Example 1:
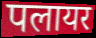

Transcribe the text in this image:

पलायर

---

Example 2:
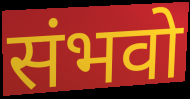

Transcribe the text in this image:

संभवो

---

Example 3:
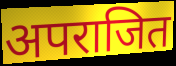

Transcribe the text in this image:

अपराजित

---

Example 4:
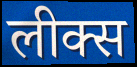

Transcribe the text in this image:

लीक्स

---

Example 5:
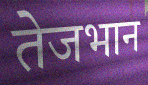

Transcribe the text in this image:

तेजभान